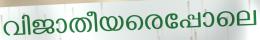
വിജാതീയരെപ്പോലെ